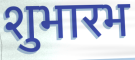
शुभारभ